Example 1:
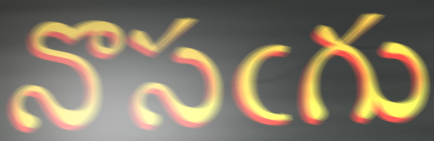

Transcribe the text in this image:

నొసఁగు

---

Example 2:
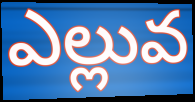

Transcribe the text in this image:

ఎల్లువ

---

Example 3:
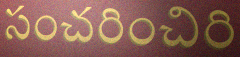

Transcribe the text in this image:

సంచరించిరి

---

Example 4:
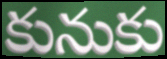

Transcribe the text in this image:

కునుకు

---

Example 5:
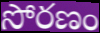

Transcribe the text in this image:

సోరణం